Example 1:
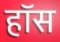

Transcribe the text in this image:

हॉस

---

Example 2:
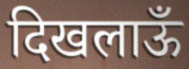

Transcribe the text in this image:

दिखलाऊँ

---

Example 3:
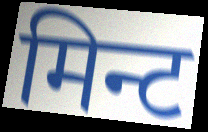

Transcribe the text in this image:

मिन्ट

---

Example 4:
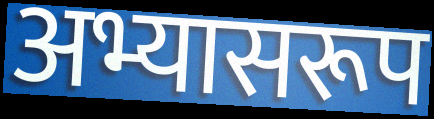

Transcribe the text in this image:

अभ्यासरूप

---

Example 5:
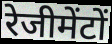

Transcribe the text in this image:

रेजीमेंटों